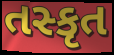
તસ્કૃત